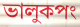
ভালুকপং